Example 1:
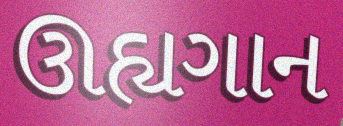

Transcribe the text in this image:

ઊહ્યગાન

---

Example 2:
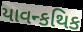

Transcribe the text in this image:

યાવન્કથિક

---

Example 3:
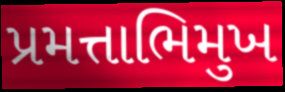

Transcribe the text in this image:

પ્રમત્તાભિમુખ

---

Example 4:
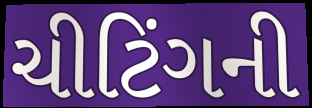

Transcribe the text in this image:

ચીટિંગની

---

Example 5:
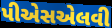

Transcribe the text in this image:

પીએસએલવી